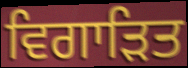
ਵਿਗਾੜਿਤ